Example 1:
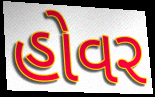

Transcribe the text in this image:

હોવર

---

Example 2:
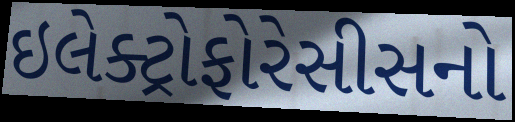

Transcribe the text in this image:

ઇલેક્ટ્રોફોરેસીસનો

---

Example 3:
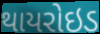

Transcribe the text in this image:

થાયરોઇડ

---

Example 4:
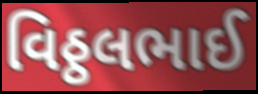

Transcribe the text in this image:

વિઠ્ઠલભાઈ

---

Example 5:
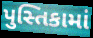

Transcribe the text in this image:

પુસ્તિકામાં